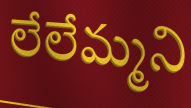
లేలేమ్మని